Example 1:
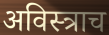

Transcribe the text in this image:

अविस्त्राच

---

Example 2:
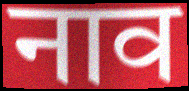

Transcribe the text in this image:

नाव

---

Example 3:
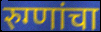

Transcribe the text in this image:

रुग्णांचा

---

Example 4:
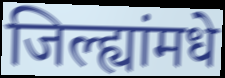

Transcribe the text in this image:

जिल्ह्यांमधे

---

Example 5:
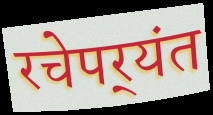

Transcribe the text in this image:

रचेपर्यंत